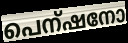
പെന്ഷനോ